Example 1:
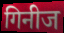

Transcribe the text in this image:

गिनीज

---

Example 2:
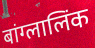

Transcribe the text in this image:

बांग्लालिंक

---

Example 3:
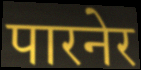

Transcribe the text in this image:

पारनेर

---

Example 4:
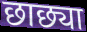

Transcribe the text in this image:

छाछ्या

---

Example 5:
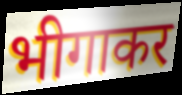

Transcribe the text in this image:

भीगाकर